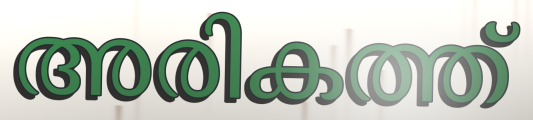
അരികത്ത്